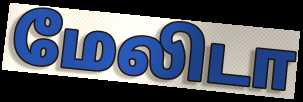
மேலிடா